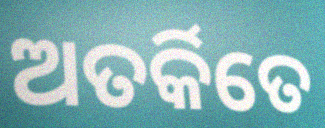
ଅତର୍କିତେ